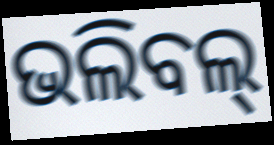
ଭଲିବଲ୍